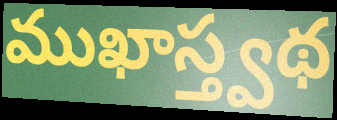
ముఖాస్త్వథ